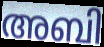
അബി